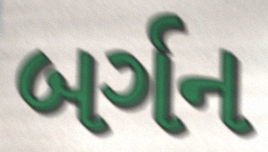
બર્ગન